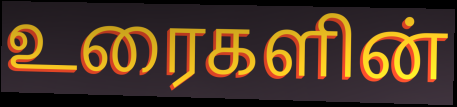
உரைகளின்